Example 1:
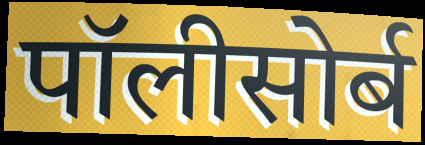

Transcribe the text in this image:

पॉलीसोर्ब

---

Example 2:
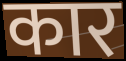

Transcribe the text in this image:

कार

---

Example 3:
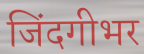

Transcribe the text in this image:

जिंदगीभर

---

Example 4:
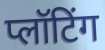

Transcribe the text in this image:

प्लॉटिंग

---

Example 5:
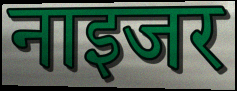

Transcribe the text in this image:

नाइजर